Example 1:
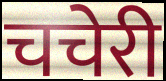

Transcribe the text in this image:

चचेरी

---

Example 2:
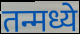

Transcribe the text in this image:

तन्मध्ये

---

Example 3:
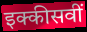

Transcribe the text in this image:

इक्‍कीसवीं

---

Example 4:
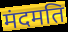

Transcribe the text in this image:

मंदमति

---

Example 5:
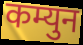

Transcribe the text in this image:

कम्युन